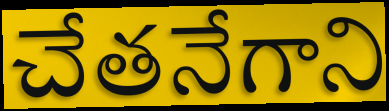
చేతనేగాని